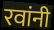
रवांनी